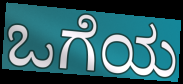
ಒಗೆಯ